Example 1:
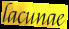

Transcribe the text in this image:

lacunae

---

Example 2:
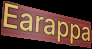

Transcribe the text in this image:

Earappa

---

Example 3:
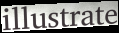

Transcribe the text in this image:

illustrate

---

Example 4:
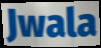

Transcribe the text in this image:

Jwala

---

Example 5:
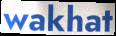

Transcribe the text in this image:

wakhat